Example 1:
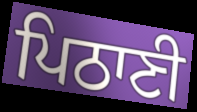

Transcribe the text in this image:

ਪਿਠਾਣੀ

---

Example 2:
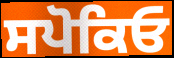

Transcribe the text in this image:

ਸਪੋਕਿਓ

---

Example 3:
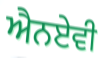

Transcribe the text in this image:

ਐਨਏਵੀ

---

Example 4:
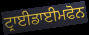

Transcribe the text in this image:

ਟ੍ਰਾਈਡਾਈਮਫੋਨ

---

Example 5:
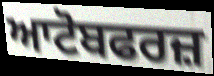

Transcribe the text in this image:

ਆਟੋਬਫਰਜ਼